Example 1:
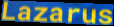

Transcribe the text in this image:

Lazarus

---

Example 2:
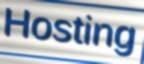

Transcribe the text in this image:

Hosting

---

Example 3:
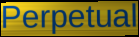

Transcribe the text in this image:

Perpetual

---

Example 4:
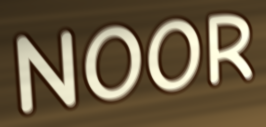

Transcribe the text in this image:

NOOR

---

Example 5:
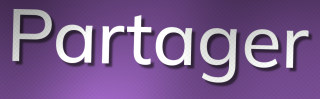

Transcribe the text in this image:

Partager